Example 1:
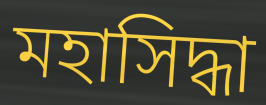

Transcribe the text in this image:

মহাসিদ্ধা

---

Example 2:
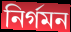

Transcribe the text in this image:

নিৰ্গমন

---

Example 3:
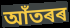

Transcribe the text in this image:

আঁতৰৰ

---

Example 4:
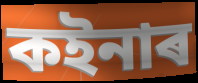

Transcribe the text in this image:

কইনাৰ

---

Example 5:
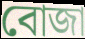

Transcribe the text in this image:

বোজা